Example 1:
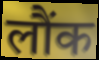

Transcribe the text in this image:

लौंक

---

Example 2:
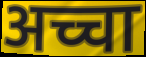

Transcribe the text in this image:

अच्चा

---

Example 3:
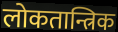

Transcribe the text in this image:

लोकतान्त्रिक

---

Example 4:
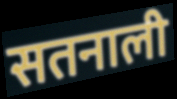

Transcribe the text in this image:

सतनाली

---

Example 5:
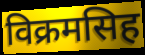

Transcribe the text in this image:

विक्रमसिह